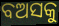
ବଅସକୁ